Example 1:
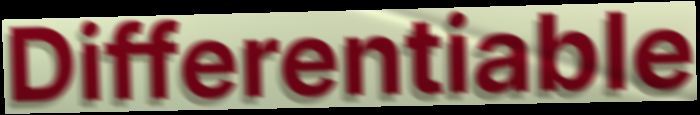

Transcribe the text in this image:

Differentiable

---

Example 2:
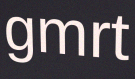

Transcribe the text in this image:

gmrt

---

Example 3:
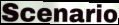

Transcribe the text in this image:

Scenario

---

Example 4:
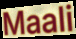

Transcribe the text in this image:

Maali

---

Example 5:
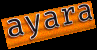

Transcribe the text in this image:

ayara